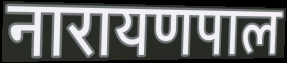
नारायणपाल